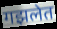
गझलेत